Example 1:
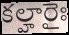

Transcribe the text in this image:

కల్హారైః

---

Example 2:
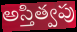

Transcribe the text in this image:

అస్తిత్వపు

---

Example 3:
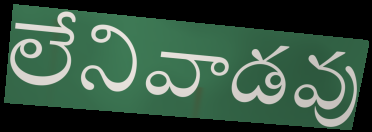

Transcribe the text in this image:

లేనివాడవు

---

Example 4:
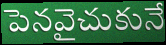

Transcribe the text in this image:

పెనవైచుకునే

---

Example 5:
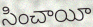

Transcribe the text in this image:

సించాయీ